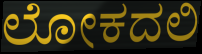
ಲೋಕದಲಿ